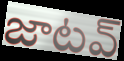
జాటవ్